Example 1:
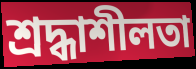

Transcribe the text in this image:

শ্রদ্ধাশীলতা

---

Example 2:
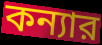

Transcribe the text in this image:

কন্যার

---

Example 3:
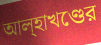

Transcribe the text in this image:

আল্হাখণ্ডের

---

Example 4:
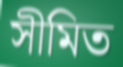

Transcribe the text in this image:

সীমিত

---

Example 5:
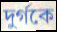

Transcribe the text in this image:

দুর্গকে